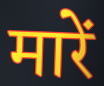
मारें